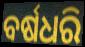
ବର୍ଷଧରି